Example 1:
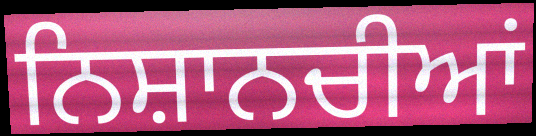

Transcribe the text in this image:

ਨਿਸ਼ਾਨਚੀਆਂ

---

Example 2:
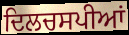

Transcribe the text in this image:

ਦਿਲਚਸਪੀਆਂ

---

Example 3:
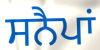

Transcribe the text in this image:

ਸਨੈਪਾਂ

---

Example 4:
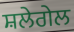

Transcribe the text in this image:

ਸ਼ਲੇਗੇਲ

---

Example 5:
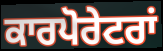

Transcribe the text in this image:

ਕਾਰਪੋਰੇਟਰਾਂ